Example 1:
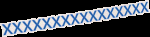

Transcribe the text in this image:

xxxxxxxxxxxxxxxx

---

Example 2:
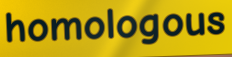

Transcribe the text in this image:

homologous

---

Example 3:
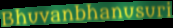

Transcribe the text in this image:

Bhuvanbhanusuri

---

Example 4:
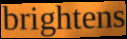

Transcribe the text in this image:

brightens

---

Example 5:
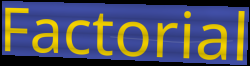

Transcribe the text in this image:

Factorial